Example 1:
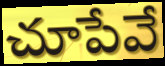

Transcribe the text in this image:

చూపేవే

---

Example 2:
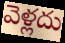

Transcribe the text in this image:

వెళ్లదు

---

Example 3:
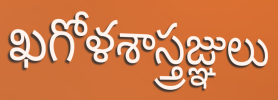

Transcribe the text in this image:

ఖగోళశాస్త్రజ్ఞులు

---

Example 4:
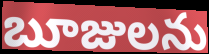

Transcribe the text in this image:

బూజులను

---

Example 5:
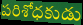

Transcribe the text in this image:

పరిశోధకుడు